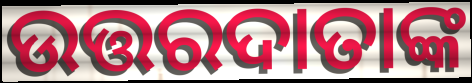
ଉତ୍ତରଦାତାଙ୍କ